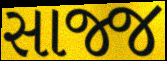
સાજ્જ